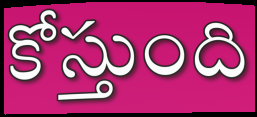
కోస్తుంది